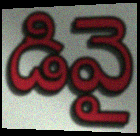
డివై